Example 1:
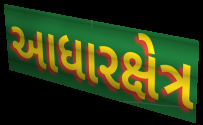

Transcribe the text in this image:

આધારક્ષેત્ર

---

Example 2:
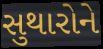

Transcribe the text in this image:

સુથારોને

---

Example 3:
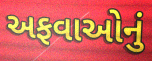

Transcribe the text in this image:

અફવાઓનું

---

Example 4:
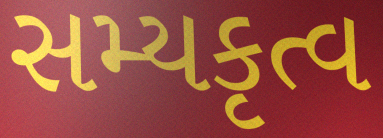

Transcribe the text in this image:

સમ્યકૃત્વ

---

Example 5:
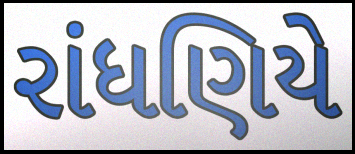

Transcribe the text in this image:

રાંધણિયે